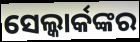
ସେଲ୍କାର୍କଙ୍କର